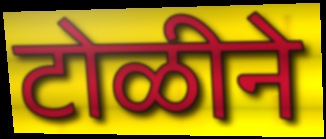
टोळीने